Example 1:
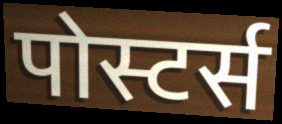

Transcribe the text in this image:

पोस्टर्स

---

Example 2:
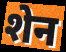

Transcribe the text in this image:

शेन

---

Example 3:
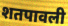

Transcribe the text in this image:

शतपावली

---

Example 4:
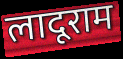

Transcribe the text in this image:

लादूराम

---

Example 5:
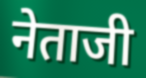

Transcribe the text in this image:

नेताजी